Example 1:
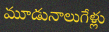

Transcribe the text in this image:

మూడునాలుగేళ్లు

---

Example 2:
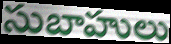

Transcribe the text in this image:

సుబాహులు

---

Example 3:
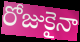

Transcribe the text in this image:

రోజుకైనా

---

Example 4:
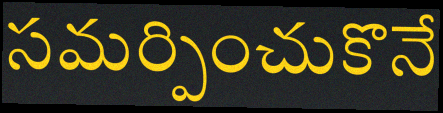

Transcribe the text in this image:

సమర్పించుకొనే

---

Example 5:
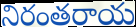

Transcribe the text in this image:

నిరంతరాయ